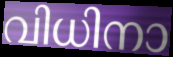
വിധിനാ